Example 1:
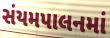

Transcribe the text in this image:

સંયમપાલનમાં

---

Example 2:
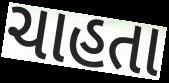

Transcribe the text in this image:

ચાહતા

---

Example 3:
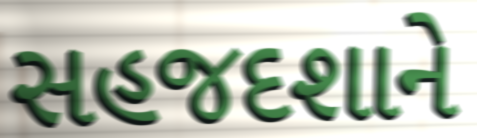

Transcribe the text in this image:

સહજદશાને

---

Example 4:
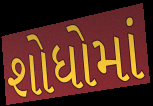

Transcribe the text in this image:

શોધોમાં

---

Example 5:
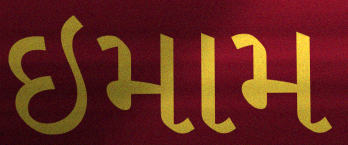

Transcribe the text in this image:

ઇમામ